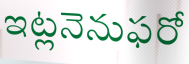
ఇట్లనెనుఫరో